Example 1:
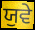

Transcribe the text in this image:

ਯੁਵੇ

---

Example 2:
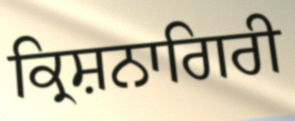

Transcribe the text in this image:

ਕ੍ਰਿਸ਼ਨਾਗਿਰੀ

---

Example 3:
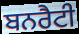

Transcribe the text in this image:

ਬਨਰੈਟੀ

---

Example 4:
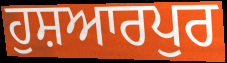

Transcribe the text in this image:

ਹੁਸ਼ਆਰਪੁਰ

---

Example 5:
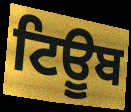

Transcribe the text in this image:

ਟਿਊੂਬ